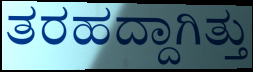
ತರಹದ್ದಾಗಿತ್ತು